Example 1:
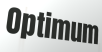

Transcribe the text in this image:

Optimum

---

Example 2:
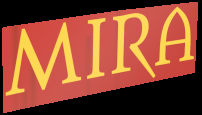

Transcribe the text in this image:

MIRA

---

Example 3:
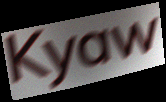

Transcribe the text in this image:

Kyaw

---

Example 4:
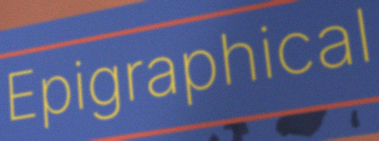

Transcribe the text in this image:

Epigraphical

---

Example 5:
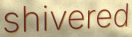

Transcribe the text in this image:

shivered